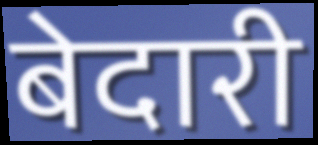
बेदारी